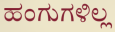
ಹಂಗುಗಳಿಲ್ಲ